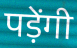
पड़ेंगी